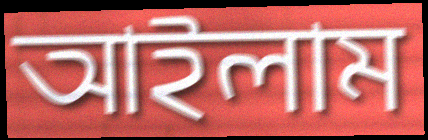
আইলাম